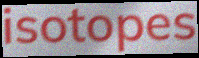
isotopes